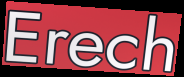
Erech